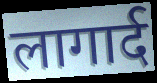
लागार्द